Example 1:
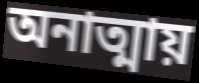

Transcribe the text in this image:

অনাত্মায়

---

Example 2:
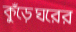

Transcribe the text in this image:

কুঁড়েঘরের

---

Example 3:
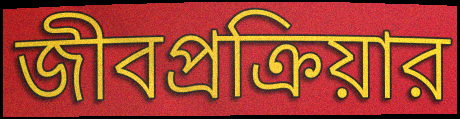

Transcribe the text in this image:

জীবপ্রক্রিয়ার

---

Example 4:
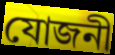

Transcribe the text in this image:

যোজনী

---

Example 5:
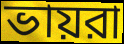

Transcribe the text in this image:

ভায়রা